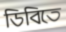
ডিবিতে